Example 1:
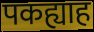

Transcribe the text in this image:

पकह्याह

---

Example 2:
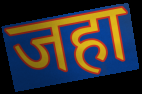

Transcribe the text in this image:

जहा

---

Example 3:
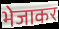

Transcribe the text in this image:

भेजाकर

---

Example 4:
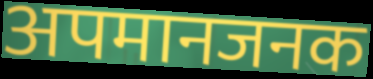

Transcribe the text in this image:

अपमानजनक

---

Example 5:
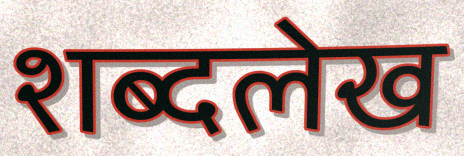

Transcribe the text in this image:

शब्दलेख